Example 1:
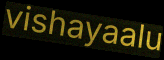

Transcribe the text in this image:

vishayaalu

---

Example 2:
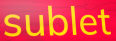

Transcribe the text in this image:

sublet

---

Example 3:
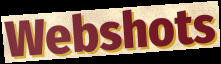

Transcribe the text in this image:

Webshots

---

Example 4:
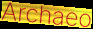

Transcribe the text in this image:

Archaeo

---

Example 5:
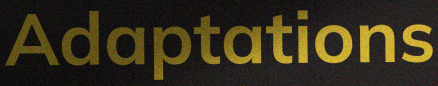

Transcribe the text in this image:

Adaptations